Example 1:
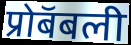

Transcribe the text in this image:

प्रोबॅबली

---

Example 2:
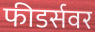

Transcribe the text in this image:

फीडर्सवर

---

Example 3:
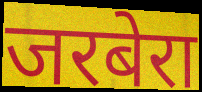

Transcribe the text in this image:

जरबेरा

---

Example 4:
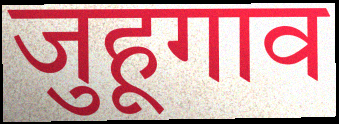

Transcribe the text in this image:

जुहूगाव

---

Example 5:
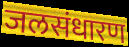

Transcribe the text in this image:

जलसंधारण